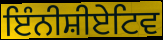
ਇੰਨੀਸ਼ੀਏਟਿਵ